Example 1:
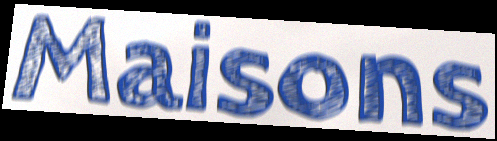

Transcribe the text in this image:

Maisons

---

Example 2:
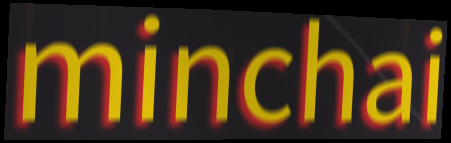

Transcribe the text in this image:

minchai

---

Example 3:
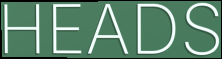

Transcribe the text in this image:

HEADS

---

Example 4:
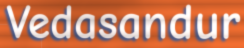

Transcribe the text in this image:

Vedasandur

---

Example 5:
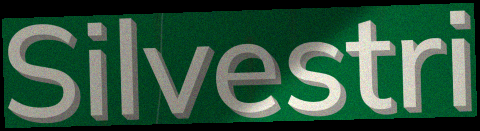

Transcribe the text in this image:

Silvestri